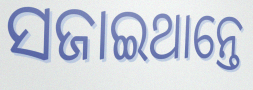
ସଜାଇଥାନ୍ତେ